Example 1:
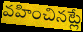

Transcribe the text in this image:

వహించినట్లే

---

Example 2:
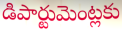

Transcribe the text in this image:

డిపార్టుమెంట్లకు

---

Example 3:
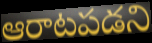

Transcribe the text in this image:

ఆరాటపడని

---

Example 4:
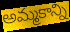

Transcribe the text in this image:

అమ్మకాన్ని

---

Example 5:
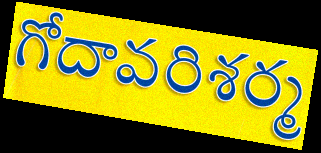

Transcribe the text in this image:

గోదావరిశర్మ